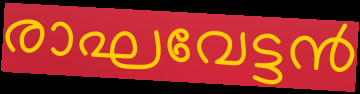
രാഘവേട്ടൻ